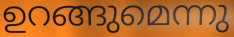
ഉറങ്ങുമെന്നു